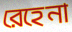
রেহেনা